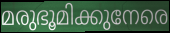
മരുഭൂമിക്കുനേരെ